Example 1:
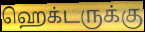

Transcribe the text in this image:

ஹெக்டருக்கு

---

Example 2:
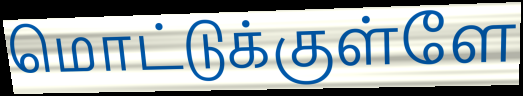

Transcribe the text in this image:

மொட்டுக்குள்ளே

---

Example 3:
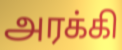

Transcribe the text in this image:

அரக்கி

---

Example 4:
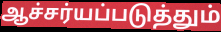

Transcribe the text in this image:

ஆச்சர்யப்படுத்தும்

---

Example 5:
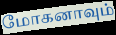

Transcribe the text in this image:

மோகனாவும்